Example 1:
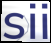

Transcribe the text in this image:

sii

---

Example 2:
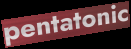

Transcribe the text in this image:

pentatonic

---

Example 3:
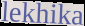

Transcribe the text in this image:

lekhika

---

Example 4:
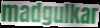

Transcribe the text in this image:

madgulkar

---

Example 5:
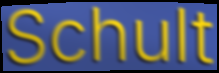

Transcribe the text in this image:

Schult